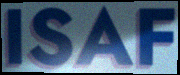
ISAF